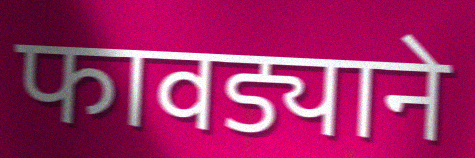
फावड्याने